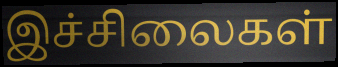
இச்சிலைகள்